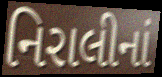
નિરાલીનાં